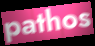
pathos